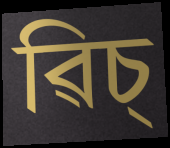
ৱিচ্